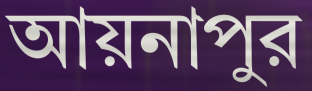
আয়নাপুর